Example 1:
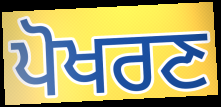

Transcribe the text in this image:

ਪੋਖਰਣ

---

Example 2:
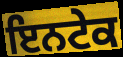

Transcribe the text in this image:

ਇਨਟੇਕ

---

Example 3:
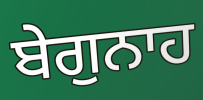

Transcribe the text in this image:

ਬੇਗੁਨਾਹ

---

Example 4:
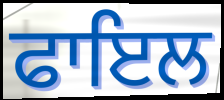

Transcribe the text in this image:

ਫਾਇਲ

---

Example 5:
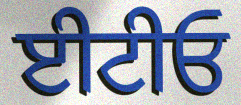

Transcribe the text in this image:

ਈਟੀਓ